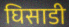
घिसाडी